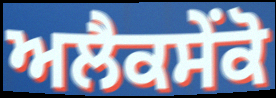
ਅਲੈਕਸੇਂਕੋ